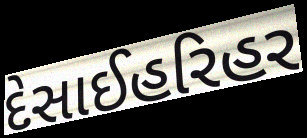
દેસાઈહરિહર